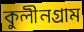
কুলীনগ্রাম